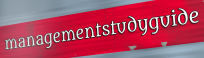
managementstudyguide